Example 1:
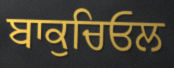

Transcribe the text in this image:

ਬਾਕੁਚਿਓਲ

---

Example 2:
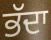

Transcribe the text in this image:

ਭੱਦਾ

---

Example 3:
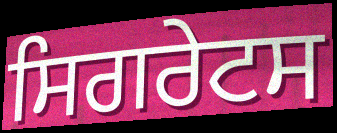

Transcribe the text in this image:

ਸਿਗਰੇਟਸ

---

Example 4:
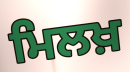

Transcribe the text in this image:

ਮਿਲਖ਼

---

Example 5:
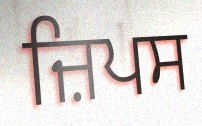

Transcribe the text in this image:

ਜ਼ਿਪਸ